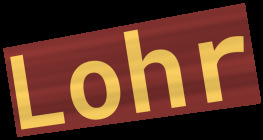
Lohr